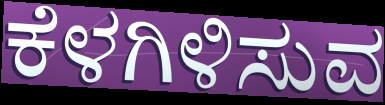
ಕೆಳಗಿಳಿಸುವ